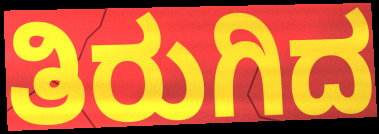
ತಿರುಗಿದ